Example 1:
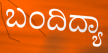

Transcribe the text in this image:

ಬಂದಿದ್ಯಾ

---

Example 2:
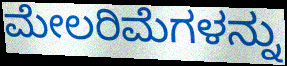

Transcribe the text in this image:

ಮೇಲರಿಮೆಗಳನ್ನು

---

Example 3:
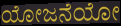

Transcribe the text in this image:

ಯೋಜನೆಯೋ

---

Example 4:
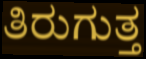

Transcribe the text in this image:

ತಿರುಗುತ್ತ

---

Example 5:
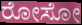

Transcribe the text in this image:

ರೋಸೋ